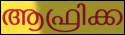
ആഫ്രിക്ക